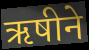
ऋषीने